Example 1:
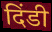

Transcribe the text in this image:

दिंडी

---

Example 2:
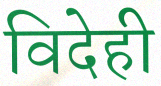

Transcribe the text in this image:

विदेही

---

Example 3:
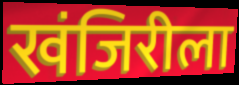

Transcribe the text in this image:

खंजिरीला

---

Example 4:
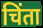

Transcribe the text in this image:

चिंता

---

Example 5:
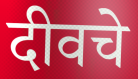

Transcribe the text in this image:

दीवचे